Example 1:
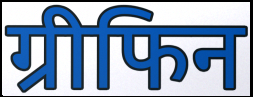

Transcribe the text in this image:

ग्रीफिन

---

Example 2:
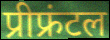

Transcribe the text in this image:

प्रीफ्रंटल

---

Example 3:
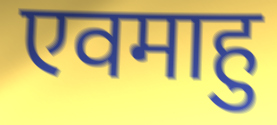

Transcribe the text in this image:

एवमाहु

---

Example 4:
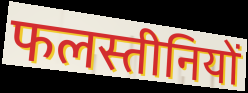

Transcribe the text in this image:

फलस्तीनियों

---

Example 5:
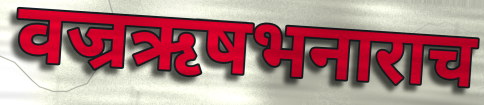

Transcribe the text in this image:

वज्रऋषभनाराच